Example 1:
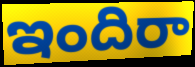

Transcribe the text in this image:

ఇందిరా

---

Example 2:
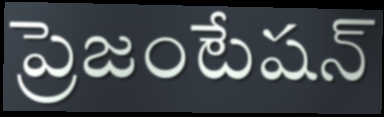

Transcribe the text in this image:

ప్రెజంటేషన్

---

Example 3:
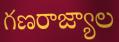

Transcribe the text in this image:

గణరాజ్యాల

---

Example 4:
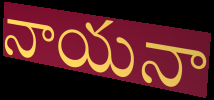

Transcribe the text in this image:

నాయనా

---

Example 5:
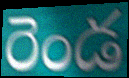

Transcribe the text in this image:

రెండ